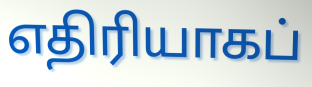
எதிரியாகப்